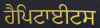
ਹੈਪਿਟਾਈਟਸ